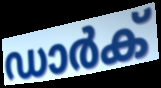
ഡാർക്